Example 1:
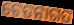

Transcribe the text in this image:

ଚେତନାଗତ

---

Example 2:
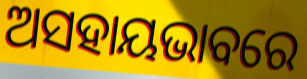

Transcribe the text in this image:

ଅସହାୟଭାବରେ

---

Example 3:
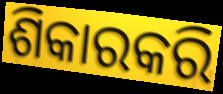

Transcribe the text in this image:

ଶିକାରକରି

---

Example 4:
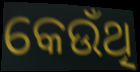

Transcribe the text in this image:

କେଉଁଥି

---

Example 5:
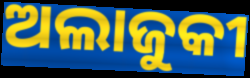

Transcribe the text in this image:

ଅଲାଜୁକୀ